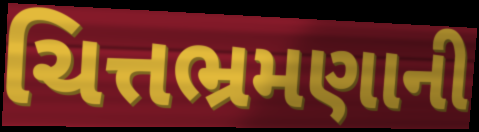
ચિત્તભ્રમણાની